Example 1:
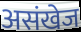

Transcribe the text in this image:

असंखेज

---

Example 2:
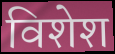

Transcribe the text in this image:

विशेश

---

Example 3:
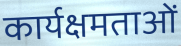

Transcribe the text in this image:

कार्यक्षमताओं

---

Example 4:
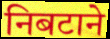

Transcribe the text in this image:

निबटाने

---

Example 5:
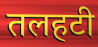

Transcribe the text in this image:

तलहटी